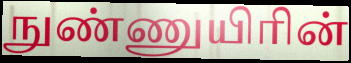
நுண்ணுயிரின்